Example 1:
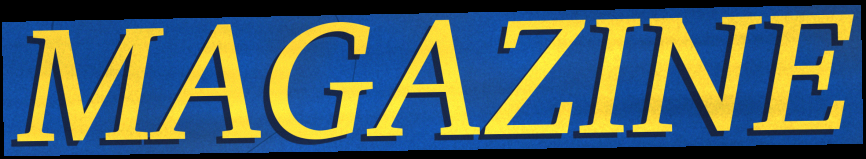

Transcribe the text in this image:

MAGAZINE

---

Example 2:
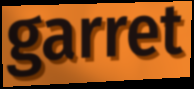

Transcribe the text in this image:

garret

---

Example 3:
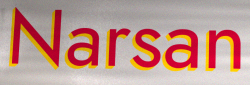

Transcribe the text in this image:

Narsan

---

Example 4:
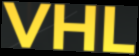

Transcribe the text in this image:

VHL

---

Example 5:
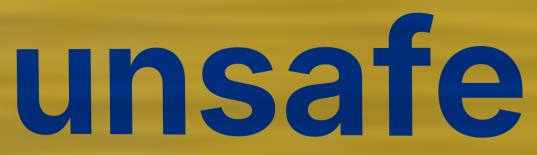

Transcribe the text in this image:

unsafe